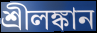
শ্রীলঙ্কান